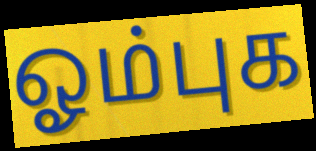
ஓம்புக